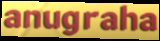
anugraha